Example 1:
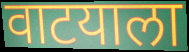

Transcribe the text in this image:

वाटयाला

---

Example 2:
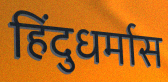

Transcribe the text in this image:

हिंदुधर्मास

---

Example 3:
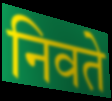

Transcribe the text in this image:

निवते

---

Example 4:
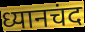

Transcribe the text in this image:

ध्यानचंद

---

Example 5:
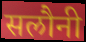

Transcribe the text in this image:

सलौनी